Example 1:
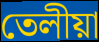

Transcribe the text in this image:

তেলীয়া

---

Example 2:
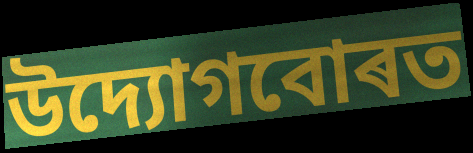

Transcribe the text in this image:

উদ্যোগবোৰত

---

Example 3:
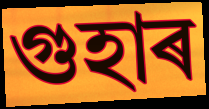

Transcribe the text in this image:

গুহাৰ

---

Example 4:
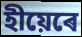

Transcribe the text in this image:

হীয়েৰে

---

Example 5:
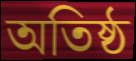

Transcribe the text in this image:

অতিষ্ঠ